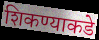
शिकण्याकडे